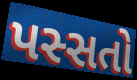
પસ્સતો